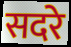
सदरे